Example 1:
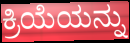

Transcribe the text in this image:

ಕ್ರಿಯೆಯನ್ನು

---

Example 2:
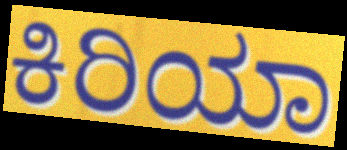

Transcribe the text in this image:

ಕಿರಿಯಾ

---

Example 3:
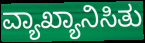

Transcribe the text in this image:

ವ್ಯಾಖ್ಯಾನಿಸಿತು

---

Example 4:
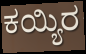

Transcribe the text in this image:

ಕಯ್ಯಿರ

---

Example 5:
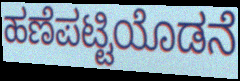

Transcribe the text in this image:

ಹಣೆಪಟ್ಟಿಯೊಡನೆ